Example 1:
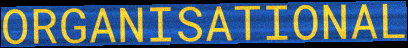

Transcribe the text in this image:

ORGANISATIONAL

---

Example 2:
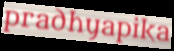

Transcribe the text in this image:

pradhyapika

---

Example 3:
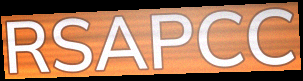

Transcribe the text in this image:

RSAPCC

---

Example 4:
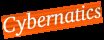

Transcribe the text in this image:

Cybernatics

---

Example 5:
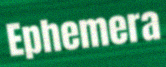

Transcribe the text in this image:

Ephemera